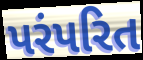
પરંપરિત